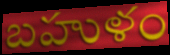
బహుళం